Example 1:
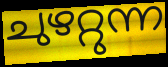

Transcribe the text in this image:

ചുഴറ്റുന്ന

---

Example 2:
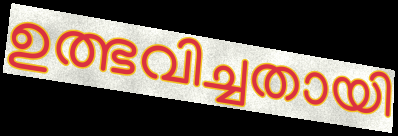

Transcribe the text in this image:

ഉത്ഭവിച്ചതായി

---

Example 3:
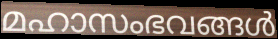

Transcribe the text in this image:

മഹാസംഭവങ്ങൾ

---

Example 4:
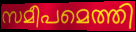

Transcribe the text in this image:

സമീപമെത്തി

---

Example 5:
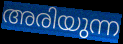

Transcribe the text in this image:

അരിയുന്ന